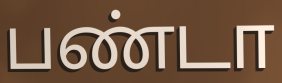
பண்டா